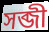
সব্জী